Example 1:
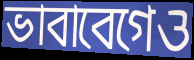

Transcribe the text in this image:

ভাবাবেগেও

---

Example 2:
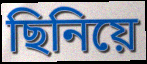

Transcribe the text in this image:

ছিনিয়ে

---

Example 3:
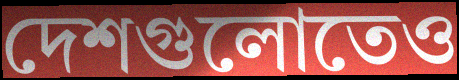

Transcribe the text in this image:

দেশগুলোতেও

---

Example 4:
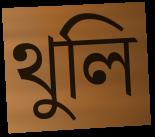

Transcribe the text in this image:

থুলি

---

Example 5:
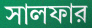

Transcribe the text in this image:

সালফার